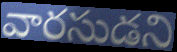
వారసుడని